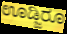
ಊಡ್ಜಿರೂ